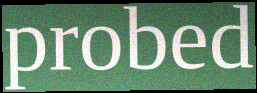
probed